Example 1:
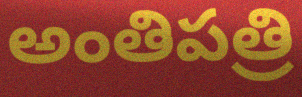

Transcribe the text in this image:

అంతిపత్రి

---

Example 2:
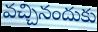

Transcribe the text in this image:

వచ్చినందుకు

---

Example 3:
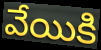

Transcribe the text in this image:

వేయికి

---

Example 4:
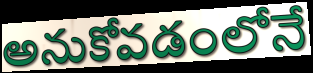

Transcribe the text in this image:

అనుకోవడంలోనే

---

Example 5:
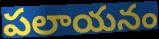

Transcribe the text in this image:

పలాయనం